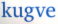
kugve